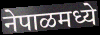
नेपाळमध्ये